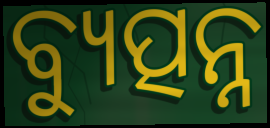
ବ୍ୟୁତ୍ପନ୍ନ